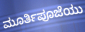
ಮೂರ್ತಿಪೂಜೆಯು